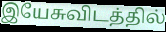
இயேசுவிடத்தில்